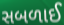
સબળાઈ